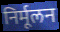
निर्मूलन